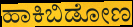
ಹಾಕಿಬಿಡೋಣ